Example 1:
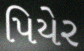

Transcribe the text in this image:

પિયેર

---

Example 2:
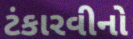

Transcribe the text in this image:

ટંકારવીનો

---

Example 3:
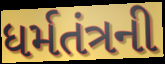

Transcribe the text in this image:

ધર્મતંત્રની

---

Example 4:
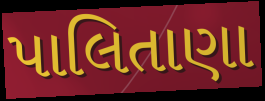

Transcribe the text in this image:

પાલિતાણા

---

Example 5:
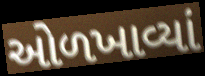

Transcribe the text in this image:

ઓળખાવ્યાં